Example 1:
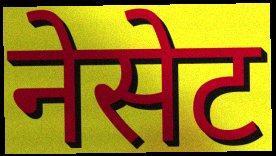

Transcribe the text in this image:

नेसेट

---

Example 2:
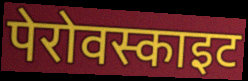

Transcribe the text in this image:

पेरोवस्काइट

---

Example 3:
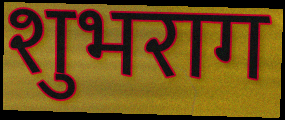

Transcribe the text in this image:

शुभराग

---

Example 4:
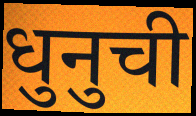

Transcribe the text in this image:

धुनुची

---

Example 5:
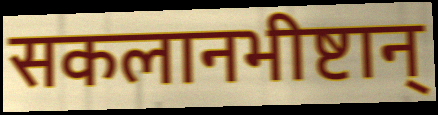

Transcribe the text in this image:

सकलानभीष्टान्